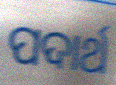
ପଦାର୍ଥ